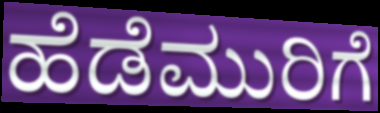
ಹೆಡೆಮುರಿಗೆ